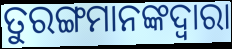
ତୁରଙ୍ଗମାନଙ୍କଦ୍ୱାରା